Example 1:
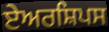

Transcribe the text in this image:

ਏਅਰਸ਼ਿਪਸ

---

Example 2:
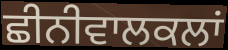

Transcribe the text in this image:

ਛੀਨੀਵਾਲਕਲਾਂ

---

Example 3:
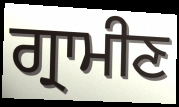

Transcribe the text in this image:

ਗ੍ਰਾਮੀਣ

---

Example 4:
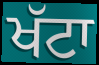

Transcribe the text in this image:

ਖੱਟਾ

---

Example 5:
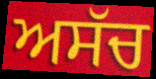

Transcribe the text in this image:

ਅਸੱਚ